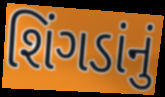
શિંગડાંનું